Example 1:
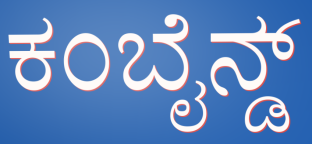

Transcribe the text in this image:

ಕಂಬೈನ್ಡ್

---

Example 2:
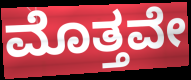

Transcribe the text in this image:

ಮೊತ್ತವೇ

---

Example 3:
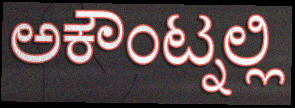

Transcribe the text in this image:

ಅಕೌಂಟ್ನಲ್ಲಿ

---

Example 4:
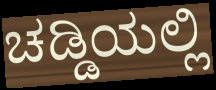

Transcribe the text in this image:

ಚಡ್ಡಿಯಲ್ಲಿ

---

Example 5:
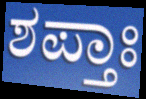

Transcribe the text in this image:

ಶಪ್ತಾಃ